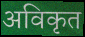
अविकृत